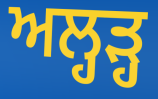
ਅਲ੍ਹੜ੍ਹ